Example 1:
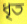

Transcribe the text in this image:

ধৃত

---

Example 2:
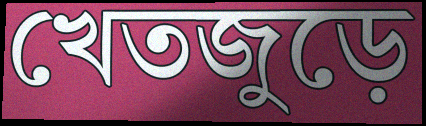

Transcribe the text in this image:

খেতজুড়ে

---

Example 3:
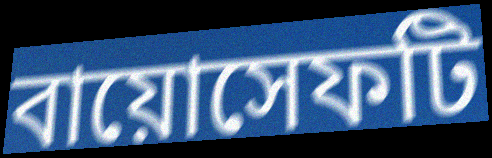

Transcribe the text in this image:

বায়োসেফটি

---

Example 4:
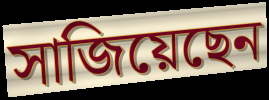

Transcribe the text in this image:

সাজিয়েছেন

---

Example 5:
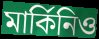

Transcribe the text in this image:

মার্কিনিও